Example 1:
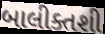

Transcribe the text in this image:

બાલીક્તશી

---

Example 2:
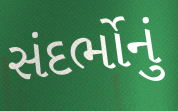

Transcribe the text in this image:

સંદર્ભોનું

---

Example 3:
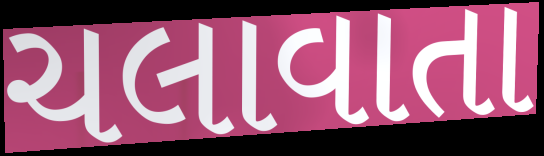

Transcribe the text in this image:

ચલાવાતા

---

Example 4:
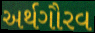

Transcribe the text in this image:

અર્થગૌરવ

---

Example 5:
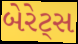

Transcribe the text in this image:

બેરેટ્સ